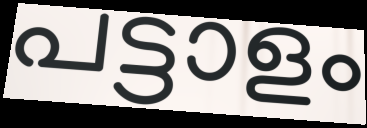
പട്ടാളം